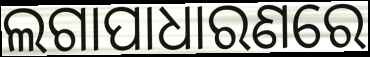
ଲଗାପାଧାରଣରେ